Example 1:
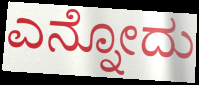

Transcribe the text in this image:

ಎನ್ನೋದು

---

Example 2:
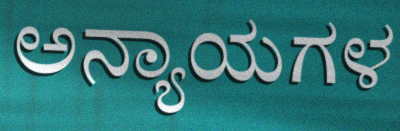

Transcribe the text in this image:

ಅನ್ಯಾಯಗಳ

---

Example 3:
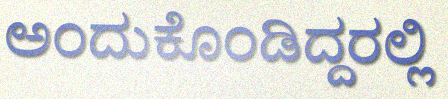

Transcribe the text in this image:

ಅಂದುಕೊಂಡಿದ್ದರಲ್ಲಿ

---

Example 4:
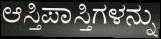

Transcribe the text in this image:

ಆಸ್ತಿಪಾಸ್ತಿಗಳನ್ನು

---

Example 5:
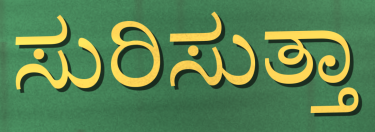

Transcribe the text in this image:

ಸುರಿಸುತ್ತಾ